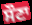
ਸੌਣਾ